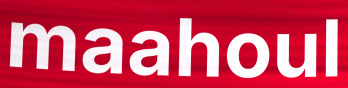
maahoul